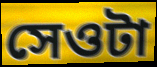
সেওটা